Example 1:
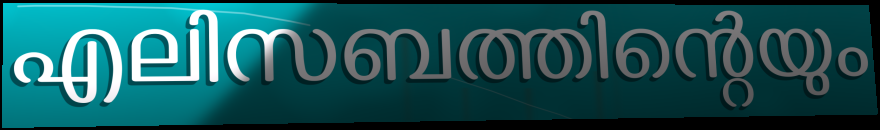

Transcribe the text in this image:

എലിസബത്തിന്റെയും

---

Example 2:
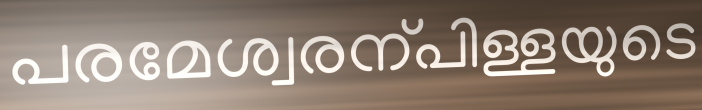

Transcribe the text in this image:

പരമേശ്വരന്പിള്ളയുടെ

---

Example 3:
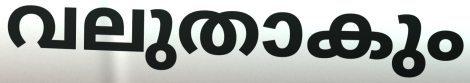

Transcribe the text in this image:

വലുതാകും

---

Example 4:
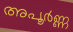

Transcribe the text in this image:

അപൂർണ്ണ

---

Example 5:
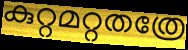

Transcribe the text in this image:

കുറ്റമറ്റതത്രേ